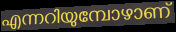
എന്നറിയുമ്പോഴാണ്